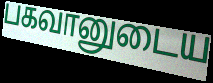
பகவானுடைய